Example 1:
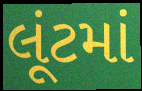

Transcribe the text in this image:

લૂંટમાં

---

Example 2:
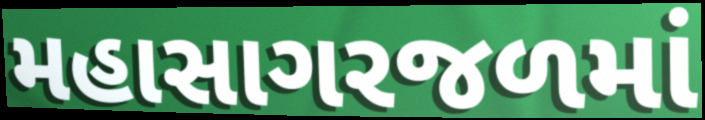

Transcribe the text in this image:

મહાસાગરજળમાં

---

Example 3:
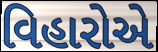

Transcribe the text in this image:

વિહારોએ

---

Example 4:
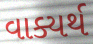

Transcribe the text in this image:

વાક્યર્થ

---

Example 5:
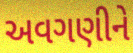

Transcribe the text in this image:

અવગણીને